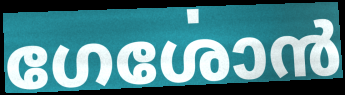
ഗേൎശോൻ